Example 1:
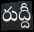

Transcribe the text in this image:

రుద్దీ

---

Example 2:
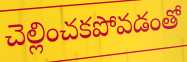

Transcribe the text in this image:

చెల్లించకపోవడంతో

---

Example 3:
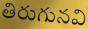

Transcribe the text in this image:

తిరుగునవి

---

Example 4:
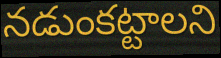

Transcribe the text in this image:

నడుంకట్టాలని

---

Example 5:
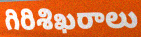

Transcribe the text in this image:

గిరిశిఖరాలు